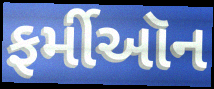
ફર્મીઑન